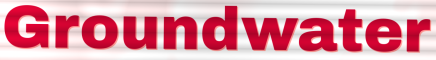
Groundwater